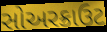
સોઅરક્રાઉટ